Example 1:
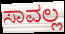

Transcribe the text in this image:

ಸಾವಲ್ಲ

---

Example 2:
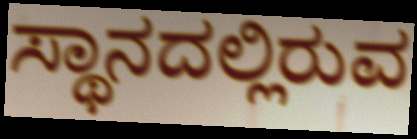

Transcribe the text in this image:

ಸ್ಥಾನದಲ್ಲಿರುವ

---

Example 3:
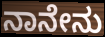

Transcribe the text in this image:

ನಾನೇನು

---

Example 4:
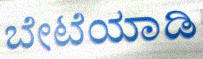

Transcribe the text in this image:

ಬೇಟೆಯಾಡಿ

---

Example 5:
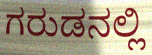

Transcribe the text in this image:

ಗರುಡನಲ್ಲಿ